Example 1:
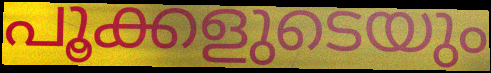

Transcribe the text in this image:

പൂക്കളുടെയും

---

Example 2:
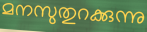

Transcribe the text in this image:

മനസുതുറക്കുന്നു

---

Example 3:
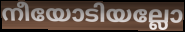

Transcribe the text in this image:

നീയോടിയല്ലോ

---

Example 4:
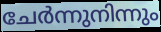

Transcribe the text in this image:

ചേർന്നുനിന്നും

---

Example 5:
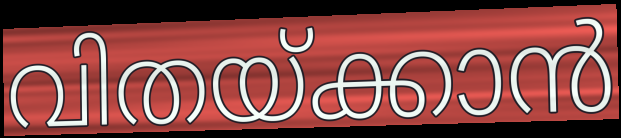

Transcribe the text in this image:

വിതയ്ക്കാൻ